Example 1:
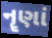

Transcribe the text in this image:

નૄણાં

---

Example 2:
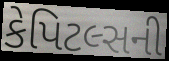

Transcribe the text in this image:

કેપિટલ્સની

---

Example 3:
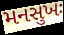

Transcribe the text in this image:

મનસુખઃ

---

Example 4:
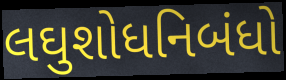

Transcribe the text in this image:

લઘુશોધનિબંધો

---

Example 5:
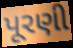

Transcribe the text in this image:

પૂરણી